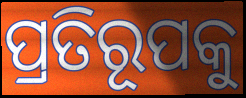
ପ୍ରତିରୂପକୁ